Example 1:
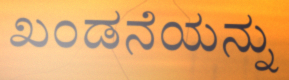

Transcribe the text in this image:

ಖಂಡನೆಯನ್ನು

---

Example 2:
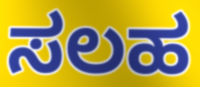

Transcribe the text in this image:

ಸಲಹ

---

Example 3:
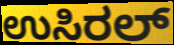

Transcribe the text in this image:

ಉಸಿರಲ್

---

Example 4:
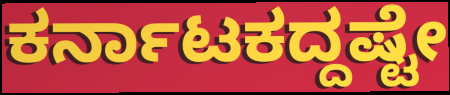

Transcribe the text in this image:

ಕರ್ನಾಟಕದ್ದಷ್ಟೇ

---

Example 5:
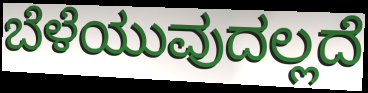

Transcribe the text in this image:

ಬೆಳೆಯುವುದಲ್ಲದೆ